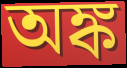
অঙ্ক